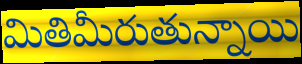
మితిమీరుతున్నాయి